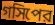
গসিপের